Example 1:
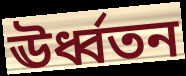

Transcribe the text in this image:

ঊর্ধ্বতন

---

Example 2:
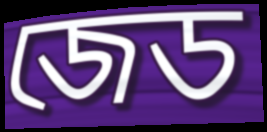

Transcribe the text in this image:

জেড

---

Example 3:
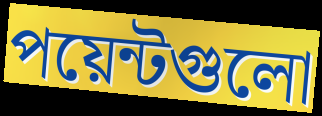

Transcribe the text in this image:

পয়েন্টগুলো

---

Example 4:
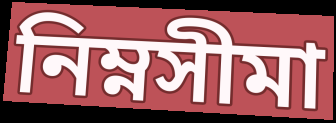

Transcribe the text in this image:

নিম্নসীমা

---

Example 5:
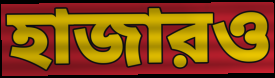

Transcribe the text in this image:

হাজারও